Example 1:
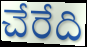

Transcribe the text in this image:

చేరేది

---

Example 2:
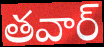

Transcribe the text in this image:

తవార్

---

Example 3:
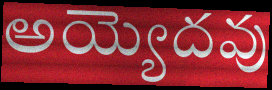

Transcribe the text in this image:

అయ్యెదవు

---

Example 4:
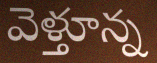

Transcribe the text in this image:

వెళ్తూన్న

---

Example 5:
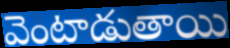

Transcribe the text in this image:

వెంటాడుతాయి